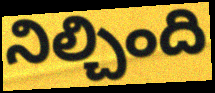
నిల్చింది